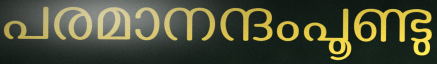
പരമാനന്ദംപൂണ്ടു